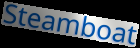
Steamboat